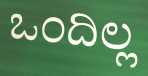
ಒಂದಿಲ್ಲ